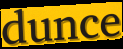
dunce